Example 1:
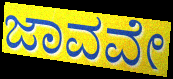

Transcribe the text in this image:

ಜಾವವೇ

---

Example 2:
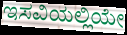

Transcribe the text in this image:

ಇಸವಿಯಲ್ಲಿಯೇ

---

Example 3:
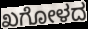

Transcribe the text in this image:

ಖಗೋಳದ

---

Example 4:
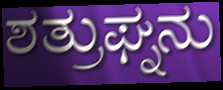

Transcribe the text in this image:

ಶತ್ರುಘ್ನನು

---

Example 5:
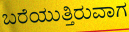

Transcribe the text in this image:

ಬರೆಯುತ್ತಿರುವಾಗ